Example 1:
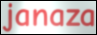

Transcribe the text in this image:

janaza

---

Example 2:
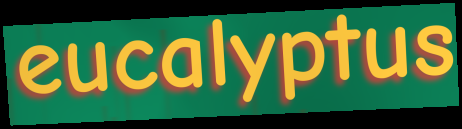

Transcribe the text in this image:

eucalyptus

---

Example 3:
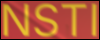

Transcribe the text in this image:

NSTI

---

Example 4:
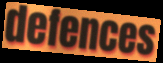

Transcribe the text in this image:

defences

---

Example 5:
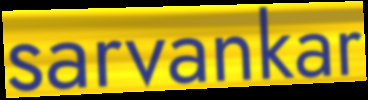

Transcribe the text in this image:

sarvankar